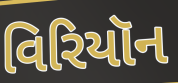
વિરિયૉન